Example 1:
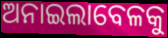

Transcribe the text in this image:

ଅନାଇଲାବେଳକୁ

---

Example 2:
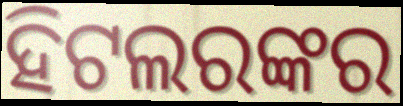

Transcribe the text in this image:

ହିଟଲରଙ୍କର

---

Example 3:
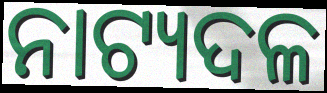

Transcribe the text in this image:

ନାଟ୍ୟଦଳ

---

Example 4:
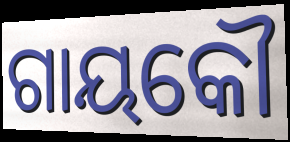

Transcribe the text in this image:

ଗାୟକୌ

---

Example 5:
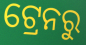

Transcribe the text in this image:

ଟ୍ରେନରୁ